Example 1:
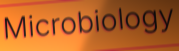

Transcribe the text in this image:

Microbiology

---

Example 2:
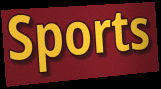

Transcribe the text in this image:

Sports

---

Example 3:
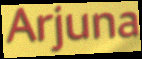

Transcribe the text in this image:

Arjuna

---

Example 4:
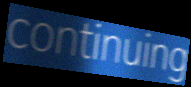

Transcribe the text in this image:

continuing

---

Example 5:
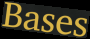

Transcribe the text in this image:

Bases